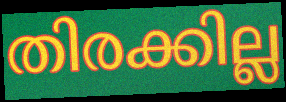
തിരക്കില്ല